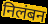
निलंबन